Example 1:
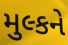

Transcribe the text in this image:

મુલ્કને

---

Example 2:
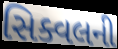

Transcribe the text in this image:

સિક્વલની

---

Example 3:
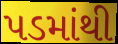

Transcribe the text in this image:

પડમાંથી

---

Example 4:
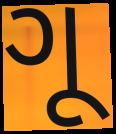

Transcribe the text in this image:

ગૂ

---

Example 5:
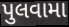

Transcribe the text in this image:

પુલવામા